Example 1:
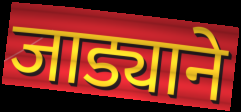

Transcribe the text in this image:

जाड्याने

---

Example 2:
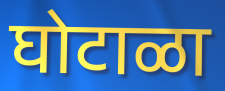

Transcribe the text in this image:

घोटाळा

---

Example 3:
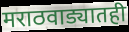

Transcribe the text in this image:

मराठवाड्यातही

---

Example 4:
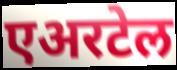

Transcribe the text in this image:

एअरटेल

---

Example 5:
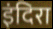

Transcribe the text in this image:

इंदिरा